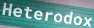
Heterodox